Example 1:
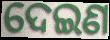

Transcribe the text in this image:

ଦେଇଣ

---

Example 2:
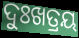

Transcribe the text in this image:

ଦୁଃଖତ୍ରୟ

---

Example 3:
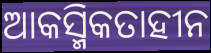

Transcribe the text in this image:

ଆକସ୍ମିକତାହୀନ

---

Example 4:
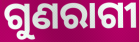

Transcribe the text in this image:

ଗୁଣରାଗୀ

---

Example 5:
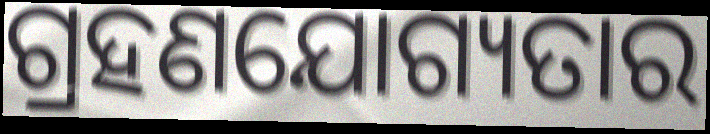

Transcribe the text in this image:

ଗ୍ରହଣଯୋଗ୍ୟତାର